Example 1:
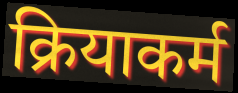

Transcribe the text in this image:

क्रियाकर्म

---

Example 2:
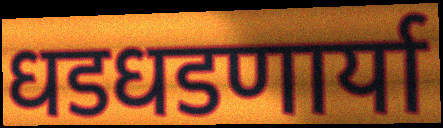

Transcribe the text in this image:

धडधडणार्या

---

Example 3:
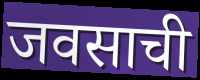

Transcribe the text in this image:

जवसाची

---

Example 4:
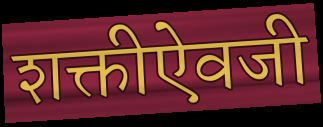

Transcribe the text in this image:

शक्तीऐवजी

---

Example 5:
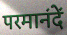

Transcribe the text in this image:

परमानंदें